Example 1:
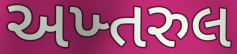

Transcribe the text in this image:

અખ્તરુલ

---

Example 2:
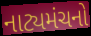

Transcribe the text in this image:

નાટ્યમંચનો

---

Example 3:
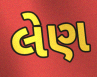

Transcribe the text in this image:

લેણ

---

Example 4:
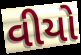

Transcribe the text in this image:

વીયો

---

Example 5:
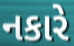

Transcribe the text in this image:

નકારે